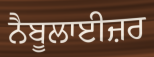
ਨੈਬੂਲਾਈਜ਼ਰ